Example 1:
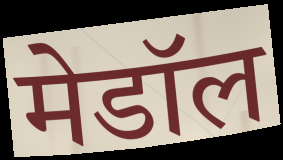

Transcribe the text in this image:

मेडॉल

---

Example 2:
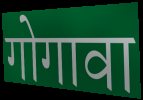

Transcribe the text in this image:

गोगावा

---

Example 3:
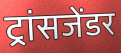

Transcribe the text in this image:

ट्रांसजेंडर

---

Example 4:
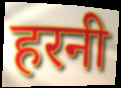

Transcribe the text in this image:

हरनी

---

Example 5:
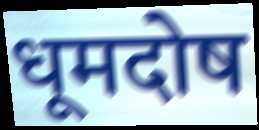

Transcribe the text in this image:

धूमदोष